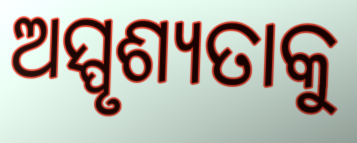
ଅସ୍ପୃଶ୍ୟତାକୁ